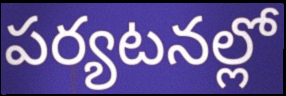
పర్యటనల్లో